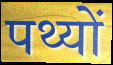
पथ्यों